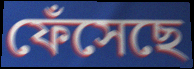
ফেঁসেছে